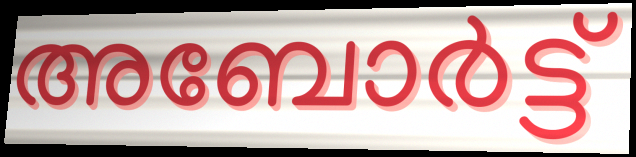
അബോർട്ട്